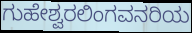
ಗುಹೇಶ್ವರಲಿಂಗವನರಿಯ